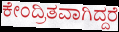
ಕೇಂದ್ರಿತವಾಗಿದ್ದರೆ